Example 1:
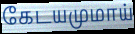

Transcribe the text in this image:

கேடயமுமாய்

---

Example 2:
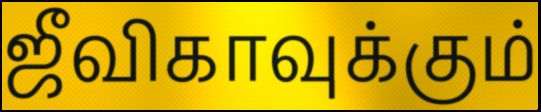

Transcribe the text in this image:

ஜீவிகாவுக்கும்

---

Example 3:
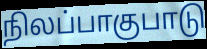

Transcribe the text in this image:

நிலப்பாகுபாடு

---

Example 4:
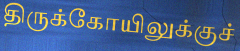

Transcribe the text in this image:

திருக்கோயிலுக்குச்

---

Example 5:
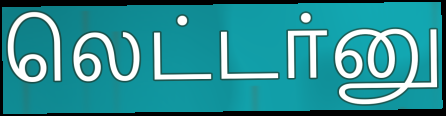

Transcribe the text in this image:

லெட்டர்னு